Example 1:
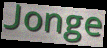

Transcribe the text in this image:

Jonge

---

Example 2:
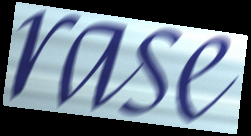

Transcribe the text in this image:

rase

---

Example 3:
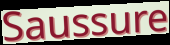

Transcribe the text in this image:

Saussure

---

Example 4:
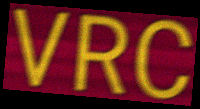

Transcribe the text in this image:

VRC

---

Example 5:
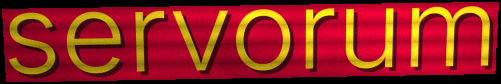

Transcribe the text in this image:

servorum